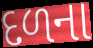
દળના